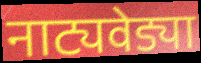
नाट्यवेड्या